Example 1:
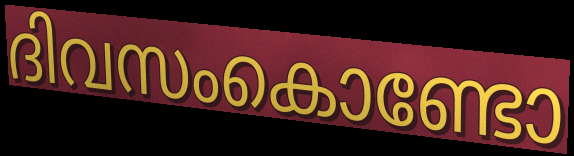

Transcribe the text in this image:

ദിവസംകൊണ്ടോ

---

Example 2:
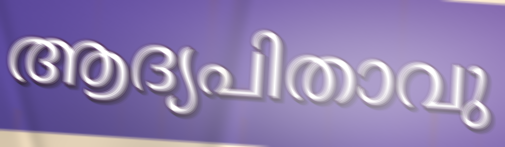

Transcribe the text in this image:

ആദ്യപിതാവു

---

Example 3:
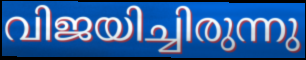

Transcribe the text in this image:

വിജയിച്ചിരുന്നു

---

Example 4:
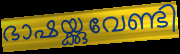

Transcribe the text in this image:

ഭാഷയ്ക്കുവേണ്ടി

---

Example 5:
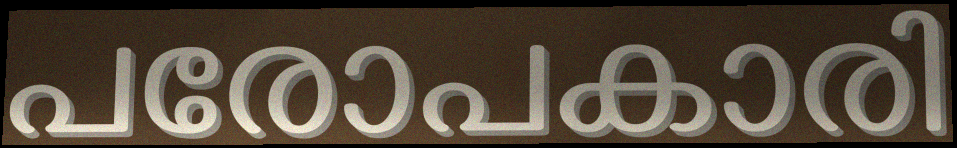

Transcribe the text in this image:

പരോപകാരി